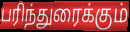
பரிந்துரைக்கும்